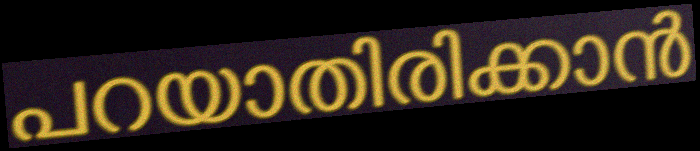
പറയാതിരിക്കാൻ